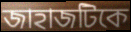
জাহাজটিকে